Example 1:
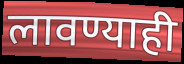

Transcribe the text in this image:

लावण्याही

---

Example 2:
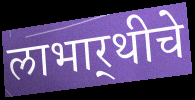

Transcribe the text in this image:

लाभार्थीचे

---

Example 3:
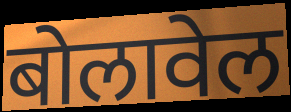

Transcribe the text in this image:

बोलावेल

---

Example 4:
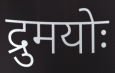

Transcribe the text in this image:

द्रुमयोः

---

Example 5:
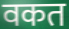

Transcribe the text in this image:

वकत